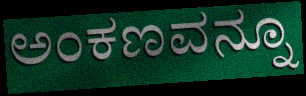
ಅಂಕಣವನ್ನೂ